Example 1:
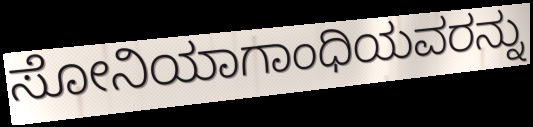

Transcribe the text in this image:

ಸೋನಿಯಾಗಾಂಧಿಯವರನ್ನು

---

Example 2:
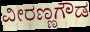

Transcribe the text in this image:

ವೀರಣ್ಣಗೌಡ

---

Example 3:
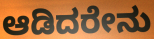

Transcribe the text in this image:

ಆಡಿದರೇನು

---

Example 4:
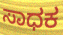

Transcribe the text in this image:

ಸಾಧಕ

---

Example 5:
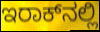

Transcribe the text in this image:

ಇರಾಕ್‌ನಲ್ಲಿ